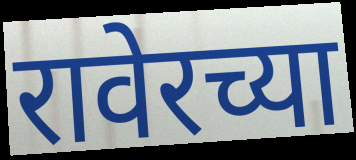
रावेरच्या